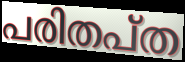
പരിതപ്ത